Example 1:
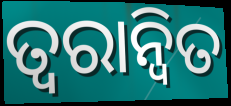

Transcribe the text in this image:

ତ୍ଵରାନ୍ବିତ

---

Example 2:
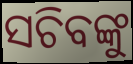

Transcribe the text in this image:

ସଚିବଙ୍କୁ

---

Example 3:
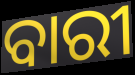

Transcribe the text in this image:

ବାରୀ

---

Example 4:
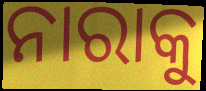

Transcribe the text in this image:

ନାରାକୁ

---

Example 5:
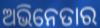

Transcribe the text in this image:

ଅଭିନେତାର